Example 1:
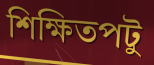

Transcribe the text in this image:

শিক্ষিতপটু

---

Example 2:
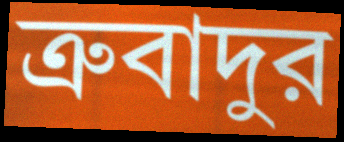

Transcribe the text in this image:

ত্রুবাদুর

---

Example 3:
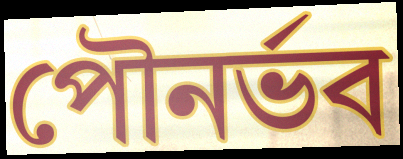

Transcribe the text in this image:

পৌনর্ভব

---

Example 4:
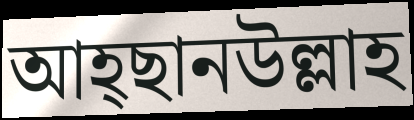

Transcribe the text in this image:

আহ্ছানউল্লাহ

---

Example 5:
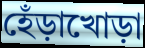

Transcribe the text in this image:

হেঁড়াখোড়া